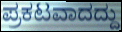
ಪ್ರಕಟವಾದದ್ದು